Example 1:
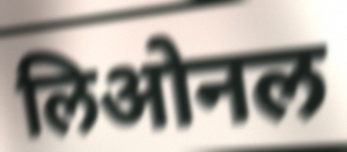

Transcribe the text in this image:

लिओनल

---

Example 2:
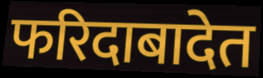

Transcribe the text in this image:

फरिदाबादेत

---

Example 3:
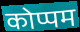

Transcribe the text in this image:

कोप्पम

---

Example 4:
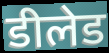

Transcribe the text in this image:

डीलेड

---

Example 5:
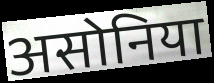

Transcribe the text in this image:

असोनिया